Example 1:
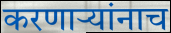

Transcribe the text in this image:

करणार्‍यांनाच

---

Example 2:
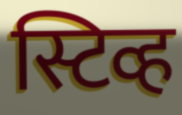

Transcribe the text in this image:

स्टिव्ह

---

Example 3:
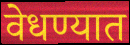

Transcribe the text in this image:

वेधण्यात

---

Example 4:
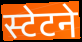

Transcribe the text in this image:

स्टेटने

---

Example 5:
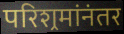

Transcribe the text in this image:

परिश्रमांनंतर